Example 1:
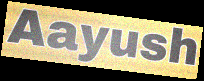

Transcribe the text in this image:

Aayush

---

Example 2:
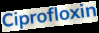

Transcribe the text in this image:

Ciprofloxin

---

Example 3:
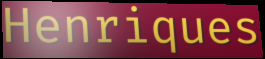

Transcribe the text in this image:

Henriques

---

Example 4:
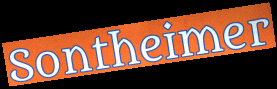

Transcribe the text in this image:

Sontheimer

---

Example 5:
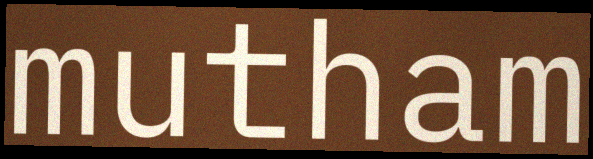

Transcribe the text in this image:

mutham